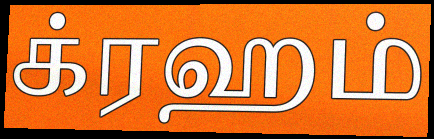
க்ரஹம்